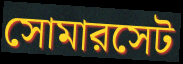
সোমারসেট